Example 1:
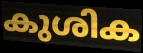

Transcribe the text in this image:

കുശിക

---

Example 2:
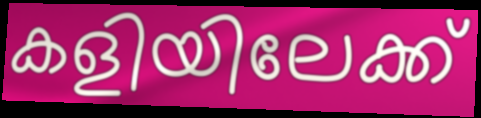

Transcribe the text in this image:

കളിയിലേക്ക്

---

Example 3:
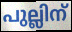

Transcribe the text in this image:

പുല്ലിന്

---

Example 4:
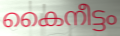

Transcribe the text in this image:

കൈനീട്ടം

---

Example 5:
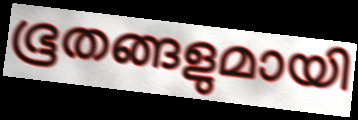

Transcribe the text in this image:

ഭൂതങ്ങളുമായി